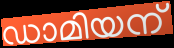
ഡാമിയന്